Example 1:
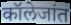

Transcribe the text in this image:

कॉलेजांत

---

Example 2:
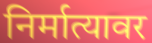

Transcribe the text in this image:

निर्मात्यावर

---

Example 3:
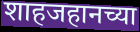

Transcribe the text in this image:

शाहजहानच्या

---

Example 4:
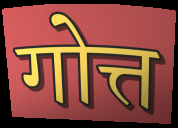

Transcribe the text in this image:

गोत्त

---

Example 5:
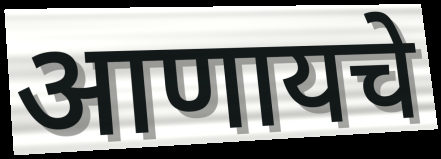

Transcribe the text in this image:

आणायचे